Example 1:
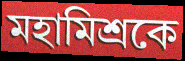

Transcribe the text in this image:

মহামিশ্রকে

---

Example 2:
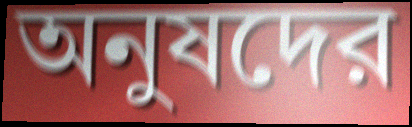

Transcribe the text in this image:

অনুষদের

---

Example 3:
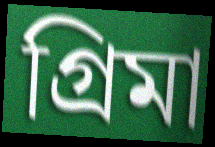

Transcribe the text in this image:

গ্রিমা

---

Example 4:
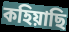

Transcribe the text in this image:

কহিয়াছি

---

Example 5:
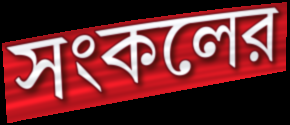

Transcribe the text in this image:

সংকলের